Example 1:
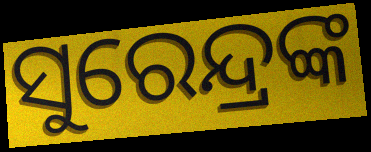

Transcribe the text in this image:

ସୁରେନ୍ଦ୍ରଙ୍କ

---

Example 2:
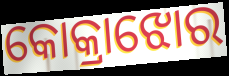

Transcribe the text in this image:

କୋକ୍ରାଝୋର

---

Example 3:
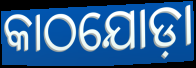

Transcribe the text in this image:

କାଠଯୋଡ଼ା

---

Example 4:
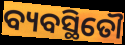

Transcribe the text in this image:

ବ୍ୟବସ୍ଥିତୌ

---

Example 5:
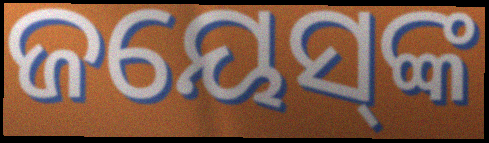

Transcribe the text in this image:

ଜୟେସ୍‌ଙ୍କ